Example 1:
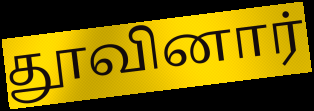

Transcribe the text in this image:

தூவினார்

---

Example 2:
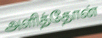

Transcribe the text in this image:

அளித்தோன்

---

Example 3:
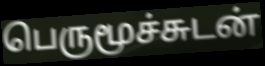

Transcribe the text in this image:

பெருமூச்சுடன்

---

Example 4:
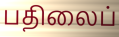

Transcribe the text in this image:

பதிலைப்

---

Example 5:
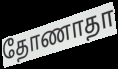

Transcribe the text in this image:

தோணாதா